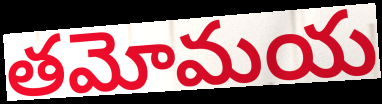
తమోమయ